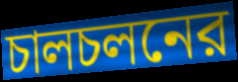
চালচলনের